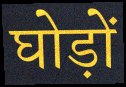
घोड़ों